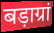
बड़ाग्रां